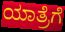
ಯಾತ್ರೆಗೆ